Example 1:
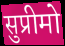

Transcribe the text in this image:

सुप्रीमो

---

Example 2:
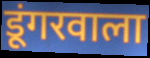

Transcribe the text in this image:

डूंगरवाला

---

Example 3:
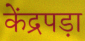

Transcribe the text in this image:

केंद्रपड़ा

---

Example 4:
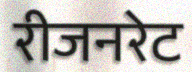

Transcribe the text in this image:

रीजनरेट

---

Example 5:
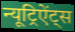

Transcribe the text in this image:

न्यूट्रिऐंट्स